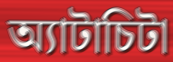
অ্যাটাচিটা